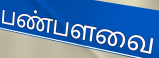
பண்பளவை